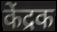
केंद्रक